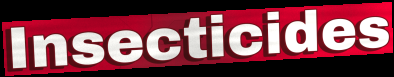
Insecticides